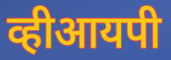
व्हीआयपी